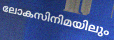
ലോകസിനിമയിലും